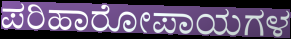
ಪರಿಹಾರೋಪಾಯಗಳ